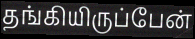
தங்கியிருப்பேன்